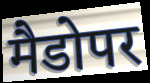
मैडोपर